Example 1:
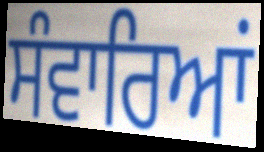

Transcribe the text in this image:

ਸੰਵਾਰਿਆਂ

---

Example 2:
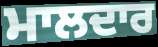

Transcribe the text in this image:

ਮਾਲਦਾਰ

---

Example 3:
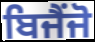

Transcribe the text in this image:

ਬਿਜੈਂਜੋ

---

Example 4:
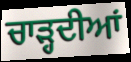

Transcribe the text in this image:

ਚਾੜ੍ਹਦੀਆਂ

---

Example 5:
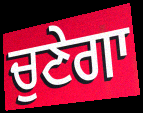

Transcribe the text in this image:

ਚੁਣੇਗਾ